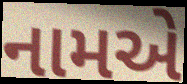
નામએ